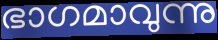
ഭാഗമാവുന്നു